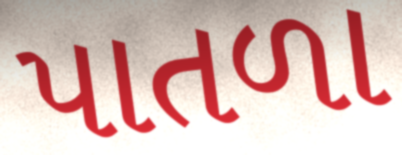
પાતળા